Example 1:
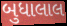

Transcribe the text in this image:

બુધાલાલ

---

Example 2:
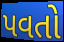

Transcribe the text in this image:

પવતો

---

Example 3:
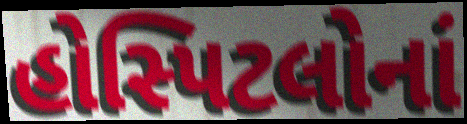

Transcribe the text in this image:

હોસ્પિટલોનાં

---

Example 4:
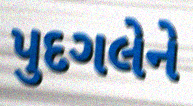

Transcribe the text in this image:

પુદગલેને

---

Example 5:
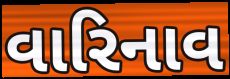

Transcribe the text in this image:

વારિનાવ